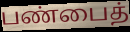
பண்பைத்